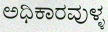
ಅಧಿಕಾರವುಳ್ಳ